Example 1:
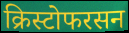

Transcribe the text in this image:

क्रिस्टोफरसन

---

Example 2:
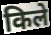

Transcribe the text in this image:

किले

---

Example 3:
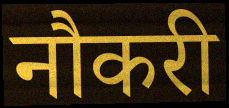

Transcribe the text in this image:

नौकरी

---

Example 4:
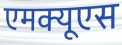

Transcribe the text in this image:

एमक्यूएस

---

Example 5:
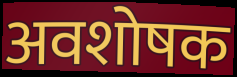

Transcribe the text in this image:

अवशोषक